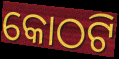
କୋଠଟି